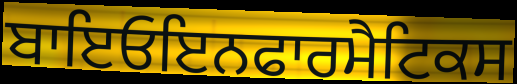
ਬਾਇਓਇਨਫਾਰਮੈਟਿਕਸ